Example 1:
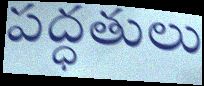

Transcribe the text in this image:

పద్ధతులు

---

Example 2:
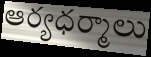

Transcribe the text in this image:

ఆర్యధర్మాలు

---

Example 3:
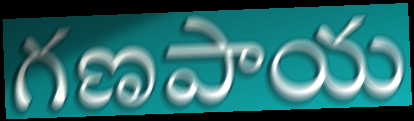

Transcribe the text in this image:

గణపాయ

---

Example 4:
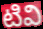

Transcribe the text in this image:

టివి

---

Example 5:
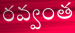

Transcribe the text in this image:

రవ్వంత